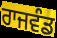
ਰਾਜਵੰਡ